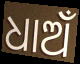
ଧାଅଁ